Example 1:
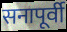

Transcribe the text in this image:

सनापूर्वी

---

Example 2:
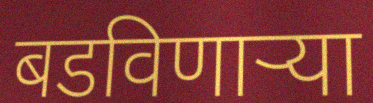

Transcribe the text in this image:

बडविणाऱ्या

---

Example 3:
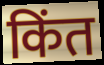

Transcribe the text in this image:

किंत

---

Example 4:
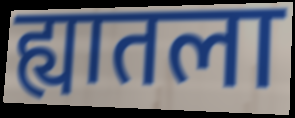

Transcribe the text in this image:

ह्यातला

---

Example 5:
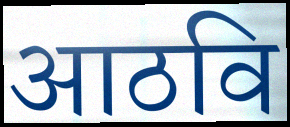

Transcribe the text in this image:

आठवि